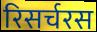
रिसर्चरस